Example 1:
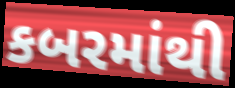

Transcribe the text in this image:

કબરમાંથી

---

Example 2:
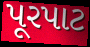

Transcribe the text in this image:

પૂરપાટ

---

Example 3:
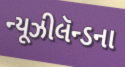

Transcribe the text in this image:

ન્યૂઝીલૅન્ડના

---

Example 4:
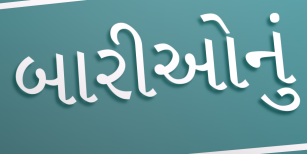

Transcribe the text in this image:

બારીઓનું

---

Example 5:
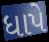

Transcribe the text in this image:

ધાપે